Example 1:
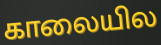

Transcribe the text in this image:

காலையில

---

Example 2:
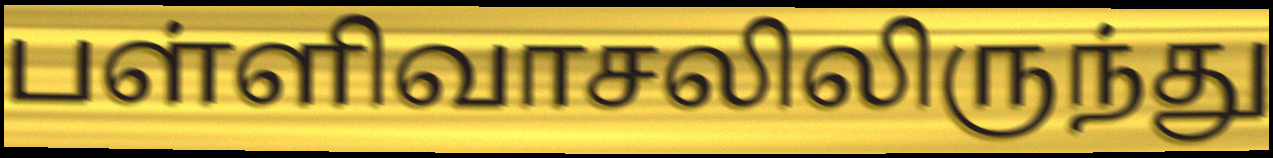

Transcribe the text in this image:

பள்ளிவாசலிலிருந்து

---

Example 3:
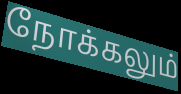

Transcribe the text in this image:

நோக்கலும்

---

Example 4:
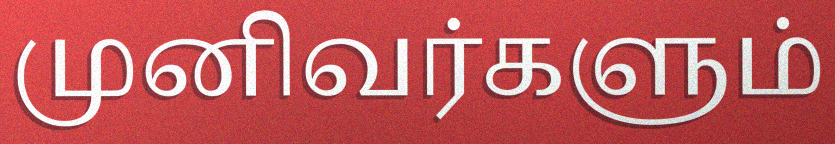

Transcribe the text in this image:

முனிவர்களும்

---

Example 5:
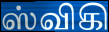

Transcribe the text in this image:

ஸ்விகி